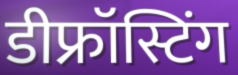
डीफ्रॉस्टिंग